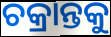
ଚକ୍ରାନ୍ତକୁ